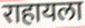
राहायला